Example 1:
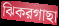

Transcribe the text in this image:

ঝিকরগাছা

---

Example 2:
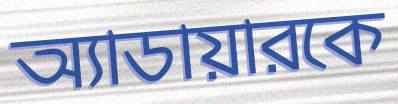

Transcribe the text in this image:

অ্যাডায়ারকে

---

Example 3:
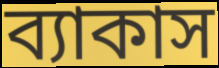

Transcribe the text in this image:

ব্যাকাস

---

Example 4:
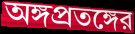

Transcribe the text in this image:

অঙ্গপ্রতঙ্গের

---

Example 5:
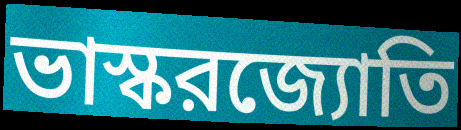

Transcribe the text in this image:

ভাস্করজ্যোতি